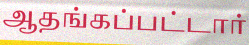
ஆதங்கப்பட்டார்